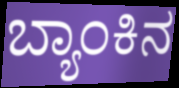
ಬ್ಯಾಂಕಿನ